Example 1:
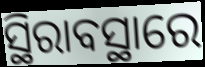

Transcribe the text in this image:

ସ୍ଥିରାବସ୍ଥାରେ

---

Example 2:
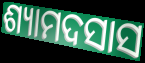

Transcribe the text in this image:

ଶ୍ୟାମଦସାସ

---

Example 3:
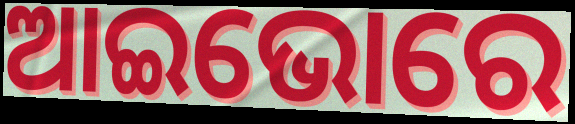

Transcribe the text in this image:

ଆଇଭୋରେ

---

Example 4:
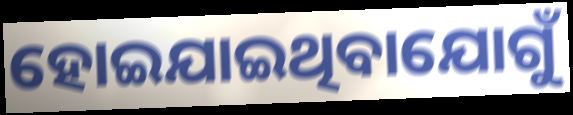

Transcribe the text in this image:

ହୋଇଯାଇଥିବାଯୋଗୁଁ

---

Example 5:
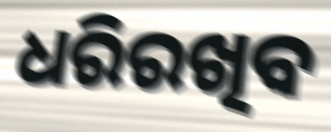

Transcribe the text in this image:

ଧରିରଖିବ